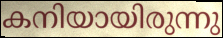
കനിയായിരുന്നു